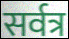
सर्वत्र